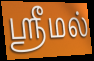
ஶ்ரீமல்